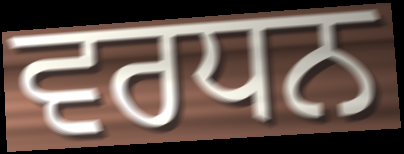
ਵਰਧਨ